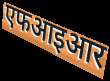
एफआइआर